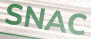
SNAC